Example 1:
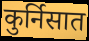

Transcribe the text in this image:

कुर्निसात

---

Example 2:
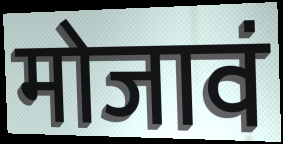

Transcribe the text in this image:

मोजावं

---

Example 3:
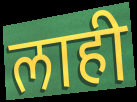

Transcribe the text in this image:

लाही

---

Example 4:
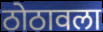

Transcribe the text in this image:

ठोठावला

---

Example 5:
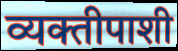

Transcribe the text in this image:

व्यक्तीपाशी